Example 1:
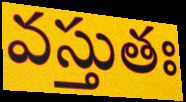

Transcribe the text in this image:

వస్తుతః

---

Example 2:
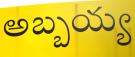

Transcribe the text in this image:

అబ్బయ్య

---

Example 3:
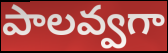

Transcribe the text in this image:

పాలవ్వగా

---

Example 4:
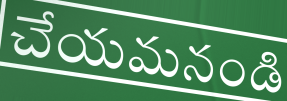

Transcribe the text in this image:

చేయమనండి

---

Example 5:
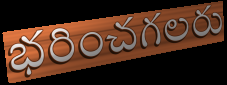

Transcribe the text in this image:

భరించగలరు